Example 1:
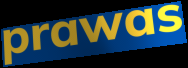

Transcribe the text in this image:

prawas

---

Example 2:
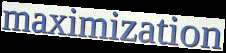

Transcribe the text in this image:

maximization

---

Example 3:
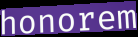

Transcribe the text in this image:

honorem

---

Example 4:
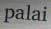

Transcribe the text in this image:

palai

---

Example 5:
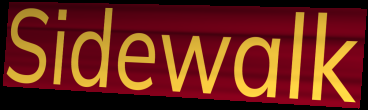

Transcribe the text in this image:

Sidewalk